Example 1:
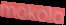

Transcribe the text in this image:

mokolo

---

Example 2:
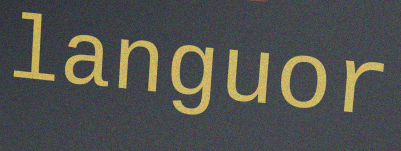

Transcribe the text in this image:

languor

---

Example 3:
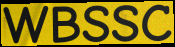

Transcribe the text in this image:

WBSSC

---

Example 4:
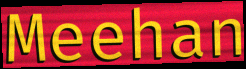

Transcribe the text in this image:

Meehan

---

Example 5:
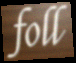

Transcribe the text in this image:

foll